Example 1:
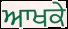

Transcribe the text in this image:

ਆਖਕੇ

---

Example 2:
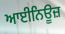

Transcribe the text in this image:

ਆਈਨਿਊਜ਼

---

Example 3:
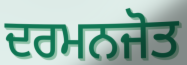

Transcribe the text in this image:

ਦਰਮਨਜੋਤ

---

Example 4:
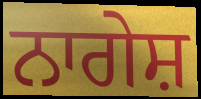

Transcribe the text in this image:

ਨਾਗੇਸ਼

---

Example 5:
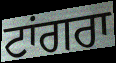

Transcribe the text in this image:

ਟਾਂਗਰਾ